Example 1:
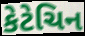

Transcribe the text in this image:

કેટેચિન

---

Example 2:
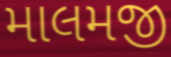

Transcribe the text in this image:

માલમજી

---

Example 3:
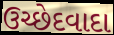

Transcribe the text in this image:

ઉચ્છેદવાદા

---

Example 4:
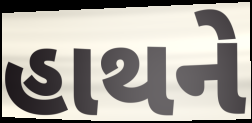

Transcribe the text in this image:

હાથને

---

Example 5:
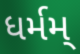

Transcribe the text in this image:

ધર્મમ્